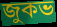
জুকভ